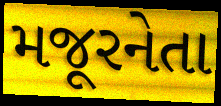
મજૂરનેતા